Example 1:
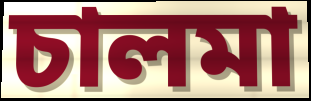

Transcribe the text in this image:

চালমা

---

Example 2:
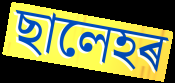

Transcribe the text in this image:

ছালেহৰ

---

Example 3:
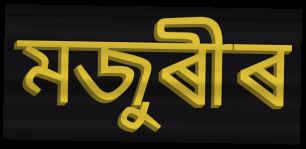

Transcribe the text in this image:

মজুৰীৰ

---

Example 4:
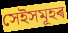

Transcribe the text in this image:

সেইসমূহৰ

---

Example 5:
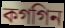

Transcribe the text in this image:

কগগিন